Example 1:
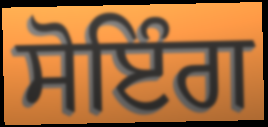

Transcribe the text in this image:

ਸੋਇੰਗ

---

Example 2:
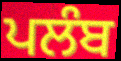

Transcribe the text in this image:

ਪਲੰਬ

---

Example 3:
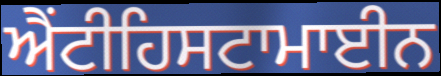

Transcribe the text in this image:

ਐਂਟੀਹਿਸਟਾਮਾਈਨ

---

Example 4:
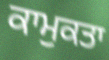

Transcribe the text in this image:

ਕਾਮੁਕਤਾ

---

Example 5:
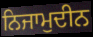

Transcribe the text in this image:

ਨਿਜਾਮੁਦੀਨ